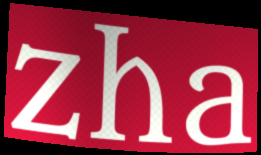
zha